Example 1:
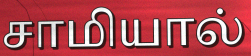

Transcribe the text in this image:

சாமியால்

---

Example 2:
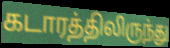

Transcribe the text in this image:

கடாரத்திலிருந்து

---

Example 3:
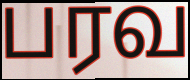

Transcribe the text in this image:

பரவ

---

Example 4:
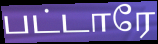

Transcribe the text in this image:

பட்டாரே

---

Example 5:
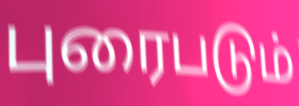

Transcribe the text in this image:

புரைபடும்